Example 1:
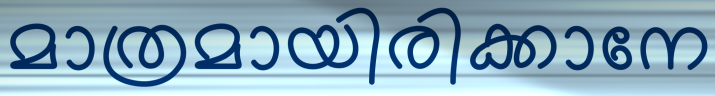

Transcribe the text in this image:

മാത്രമായിരിക്കാനേ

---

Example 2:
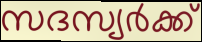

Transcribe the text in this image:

സദസ്യർക്ക്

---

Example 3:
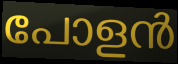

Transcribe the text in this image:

പോളൻ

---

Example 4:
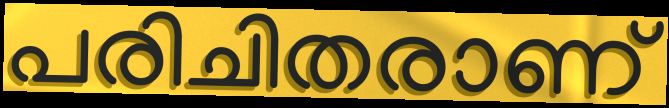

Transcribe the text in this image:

പരിചിതരാണ്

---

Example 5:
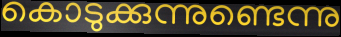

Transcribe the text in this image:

കൊടുക്കുന്നുണ്ടെന്നു